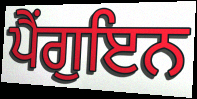
ਪੈਂਗੁਇਨ